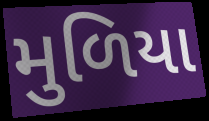
મુળિયા